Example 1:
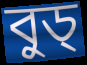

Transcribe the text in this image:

বুড্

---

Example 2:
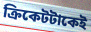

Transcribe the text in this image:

ক্রিকেটটাকেই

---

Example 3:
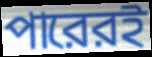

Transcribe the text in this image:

পারেরই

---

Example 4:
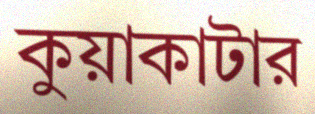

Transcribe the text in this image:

কুয়াকাটার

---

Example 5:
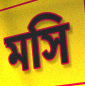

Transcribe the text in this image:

মসি